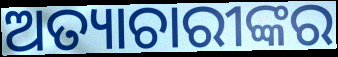
ଅତ୍ୟାଚାରୀଙ୍କର